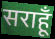
सराहूँ